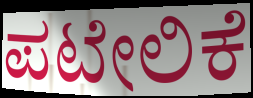
ಪಟೇಲಿಕೆ